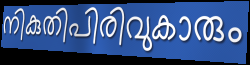
നികുതിപിരിവുകാരും